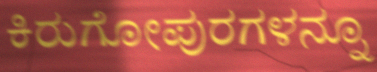
ಕಿರುಗೋಪುರಗಳನ್ನೂ